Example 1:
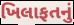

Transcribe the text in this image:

ખિલાફતનું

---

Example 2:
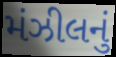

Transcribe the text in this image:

મંઝીલનું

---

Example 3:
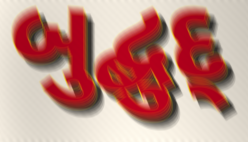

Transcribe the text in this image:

બુદ્બુદ્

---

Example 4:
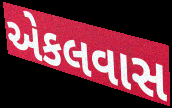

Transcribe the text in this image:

એકલવાસ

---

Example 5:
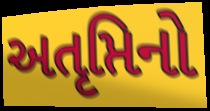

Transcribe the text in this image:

અતૃપ્તિનો